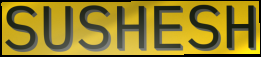
SUSHESH